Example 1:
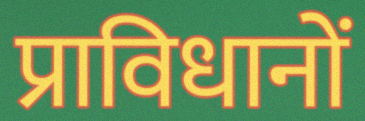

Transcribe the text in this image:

प्राविधानों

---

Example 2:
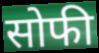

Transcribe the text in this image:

सोफी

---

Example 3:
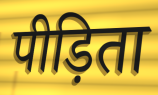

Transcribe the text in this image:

पीड़िता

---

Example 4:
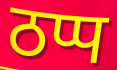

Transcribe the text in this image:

ठप्प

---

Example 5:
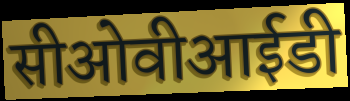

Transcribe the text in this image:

सीओवीआईडी